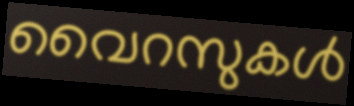
വൈറസുകൾ